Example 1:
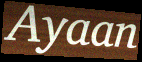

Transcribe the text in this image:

Ayaan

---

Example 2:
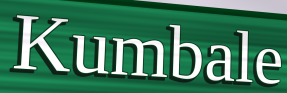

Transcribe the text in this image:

Kumbale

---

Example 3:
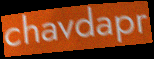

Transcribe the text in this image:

chavdapr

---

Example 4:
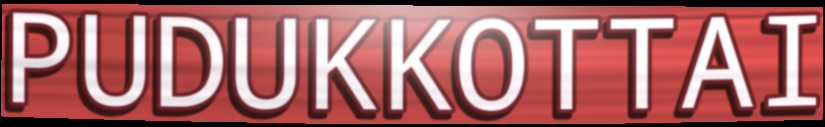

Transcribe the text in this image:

PUDUKKOTTAI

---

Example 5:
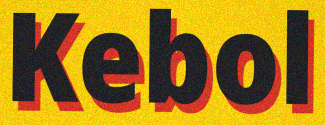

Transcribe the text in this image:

Kebol